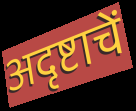
अदृष्टाचें